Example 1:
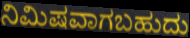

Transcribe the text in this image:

ನಿಮಿಷವಾಗಬಹುದು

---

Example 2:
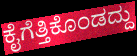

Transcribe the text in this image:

ಕೈಗೆತ್ತಿಕೊಂಡದ್ದು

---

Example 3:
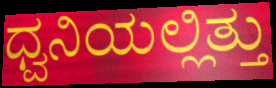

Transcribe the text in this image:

ಧ್ವನಿಯಲ್ಲಿತ್ತು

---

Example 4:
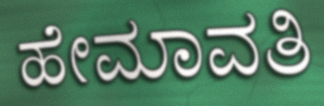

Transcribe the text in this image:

ಹೇಮಾವತಿ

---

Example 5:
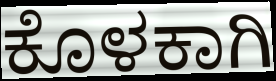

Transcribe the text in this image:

ಕೊಳಕಾಗಿ